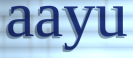
aayu